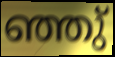
ഞ്ഞു്